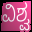
ವಿಶ್ವ